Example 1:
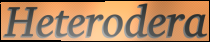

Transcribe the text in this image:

Heterodera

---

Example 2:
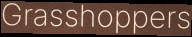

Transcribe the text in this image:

Grasshoppers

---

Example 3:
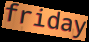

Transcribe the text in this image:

friday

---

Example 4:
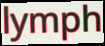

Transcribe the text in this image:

lymph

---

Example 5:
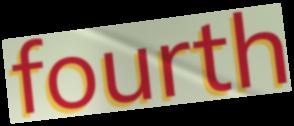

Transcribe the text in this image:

fourth